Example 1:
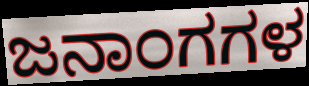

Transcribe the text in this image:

ಜನಾಂಗಗಳ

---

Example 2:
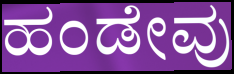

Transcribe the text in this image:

ಹಂಡೇವು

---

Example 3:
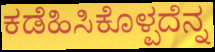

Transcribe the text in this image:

ಕಡೆಹಿಸಿಕೊಳ್ಪದೆನ್ನ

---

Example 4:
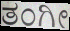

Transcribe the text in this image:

ತಂಗೀ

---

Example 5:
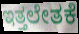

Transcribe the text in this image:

ಇತ್ತಲೇತಕೆ